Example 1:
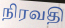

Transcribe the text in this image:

நிரவதி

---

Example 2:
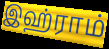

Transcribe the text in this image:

இஹ்ராம்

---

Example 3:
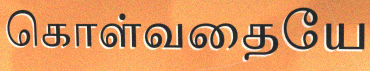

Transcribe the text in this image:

கொள்வதையே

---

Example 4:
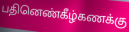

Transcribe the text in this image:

பதினெண்கீழ்கணக்கு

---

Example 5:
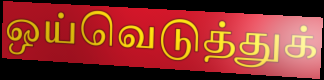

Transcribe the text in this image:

ஒய்வெடுத்துக்